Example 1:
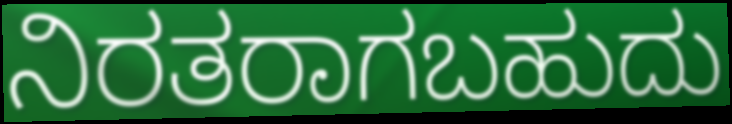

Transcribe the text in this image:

ನಿರತರಾಗಬಹುದು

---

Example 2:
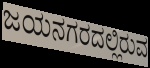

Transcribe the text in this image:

ಜಯನಗರದಲ್ಲಿರುವ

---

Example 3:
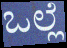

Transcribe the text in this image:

ಒಲ್ಲೆ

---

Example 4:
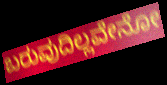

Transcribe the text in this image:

ಬರುವುದಿಲ್ಲವೇನೋ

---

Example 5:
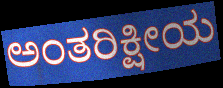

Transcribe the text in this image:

ಅಂತರಿಕ್ಷೀಯ